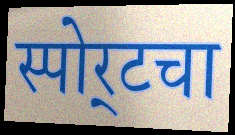
स्पोर्टचा